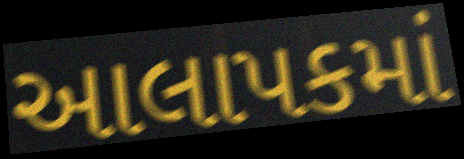
આલાપકમાં